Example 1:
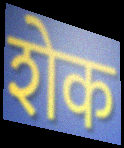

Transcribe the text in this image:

शेक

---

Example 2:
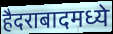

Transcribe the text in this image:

हैदराबादमध्ये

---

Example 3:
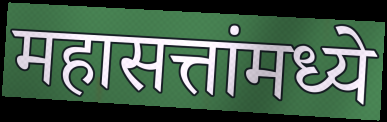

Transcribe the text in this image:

महासत्तांमध्ये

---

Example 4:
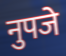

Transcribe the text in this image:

नुपजे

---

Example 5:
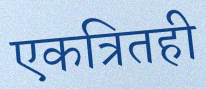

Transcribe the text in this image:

एकत्रितही